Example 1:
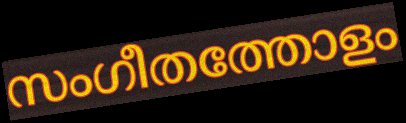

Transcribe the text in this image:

സംഗീതത്തോളം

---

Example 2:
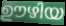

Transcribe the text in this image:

ഊഴിയ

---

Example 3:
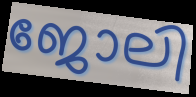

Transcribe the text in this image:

ജോലി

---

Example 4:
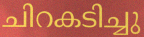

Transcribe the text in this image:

ചിറകടിച്ചു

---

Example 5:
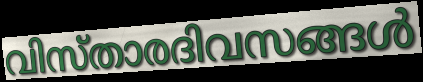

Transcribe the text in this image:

വിസ്താരദിവസങ്ങൾ